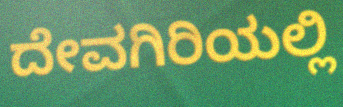
ದೇವಗಿರಿಯಲ್ಲಿ